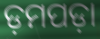
ଡ଼ମପଡ଼ା